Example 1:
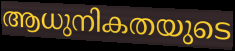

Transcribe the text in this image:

ആധുനികതയുടെ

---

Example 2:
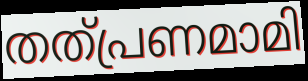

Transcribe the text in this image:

തത്പ്രണമാമി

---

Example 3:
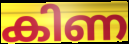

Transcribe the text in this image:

കിണ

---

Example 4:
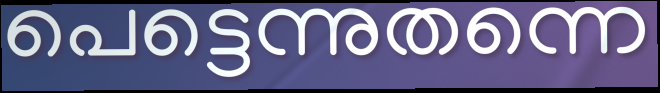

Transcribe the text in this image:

പെട്ടെന്നുതന്നെ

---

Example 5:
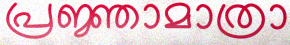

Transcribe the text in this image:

പ്രജ്ഞാമാത്രാ